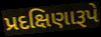
પ્રદક્ષિણારૂપે